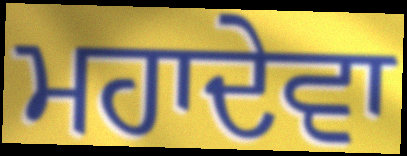
ਮਹਾਦੇਵਾ